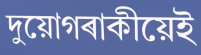
দুয়োগৰাকীয়েই